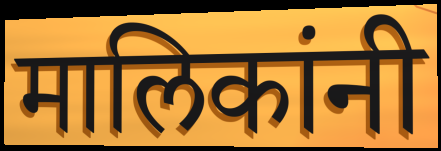
मालिकांनी